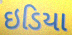
ઇડિયા